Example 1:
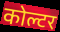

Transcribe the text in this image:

कोल्टर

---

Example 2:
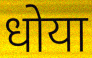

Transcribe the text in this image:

धोया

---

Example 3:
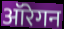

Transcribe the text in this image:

ऑरेगन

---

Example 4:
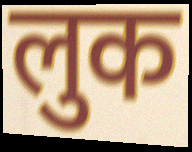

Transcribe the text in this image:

लुक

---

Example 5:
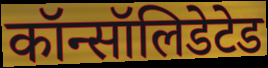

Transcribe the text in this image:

कॉन्सॉलिडेटेड